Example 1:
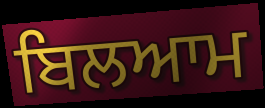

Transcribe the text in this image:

ਬਿਲਆਮ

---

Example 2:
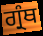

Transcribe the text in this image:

ਗ੍ਰੰਥ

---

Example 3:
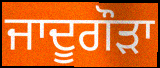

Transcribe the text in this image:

ਜਾਦੂਗੌੜਾ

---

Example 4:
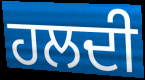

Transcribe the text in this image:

ਹਲਦੀ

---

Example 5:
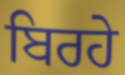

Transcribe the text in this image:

ਬਿਰਹੇ